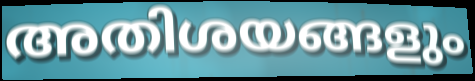
അതിശയങ്ങളും